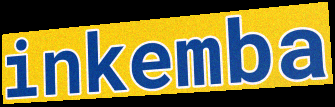
inkemba